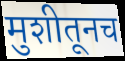
मुशीतूनच